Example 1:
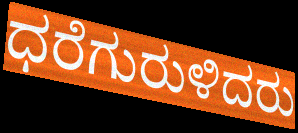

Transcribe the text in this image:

ಧರೆಗುರುಳಿದರು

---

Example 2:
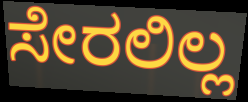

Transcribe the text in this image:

ಸೇರಲಿಲ್ಲ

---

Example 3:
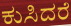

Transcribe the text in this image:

ಕುಸಿದರೆ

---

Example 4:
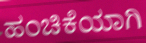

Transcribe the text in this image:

ಹಂಚಿಕೆಯಾಗಿ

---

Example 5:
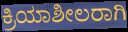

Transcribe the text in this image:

ಕ್ರಿಯಾಶೀಲರಾಗಿ